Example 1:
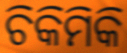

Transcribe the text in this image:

ଚିକିମିକି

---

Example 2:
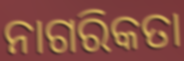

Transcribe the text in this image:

ନାଗରିକତା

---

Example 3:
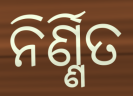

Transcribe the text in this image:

ନିର୍ଣ୍ଣିତ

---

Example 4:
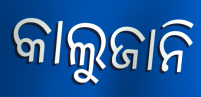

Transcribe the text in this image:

କାଲୁଜାନି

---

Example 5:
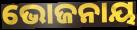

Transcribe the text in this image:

ଭୋଜନାୟ